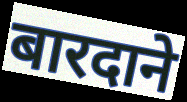
बारदाने